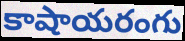
కాషాయరంగు